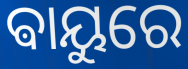
ଵାୟୁରେ